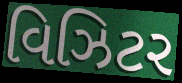
વિઝિટર